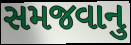
સમજવાનુ